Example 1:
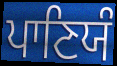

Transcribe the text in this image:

ਪਾਣਿਯੰ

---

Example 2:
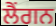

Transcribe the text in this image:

ਲੈਂਗਨ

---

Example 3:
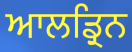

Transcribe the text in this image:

ਆਲਡ੍ਰਿਨ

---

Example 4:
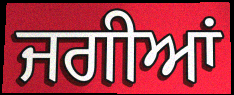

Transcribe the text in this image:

ਜਗੀਆਂ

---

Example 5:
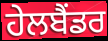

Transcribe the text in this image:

ਹੇਲਬੈਂਡਰ